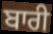
ਬਾਰੀ